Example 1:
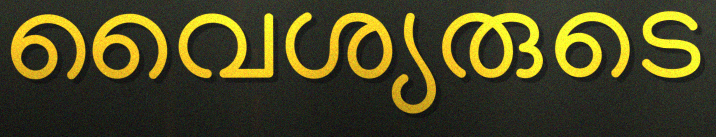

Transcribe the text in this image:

വൈശ്യരുടെ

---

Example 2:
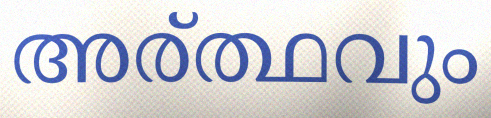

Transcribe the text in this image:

അര്ത്ഥവും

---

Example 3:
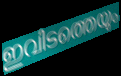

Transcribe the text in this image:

ഇവിടത്തെയും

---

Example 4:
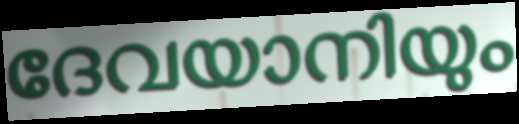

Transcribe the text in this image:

ദേവയാനിയും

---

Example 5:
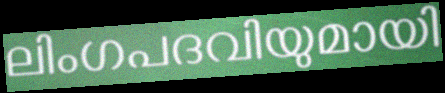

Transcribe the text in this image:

ലിംഗപദവിയുമായി